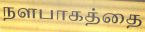
நளபாகத்தை